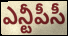
ఎన్టీపీసీ